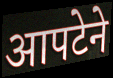
आपटेने